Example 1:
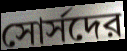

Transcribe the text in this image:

সোর্সদের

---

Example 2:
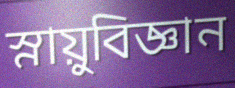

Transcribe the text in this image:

স্নায়ুবিজ্ঞান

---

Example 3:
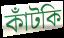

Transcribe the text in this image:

কাঁটকি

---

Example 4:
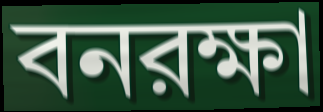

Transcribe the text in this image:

বনরক্ষা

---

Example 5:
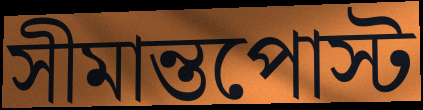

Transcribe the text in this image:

সীমান্তপোস্ট